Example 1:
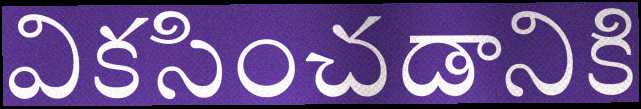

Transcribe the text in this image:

వికసించడానికి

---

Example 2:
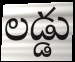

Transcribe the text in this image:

లడ్డు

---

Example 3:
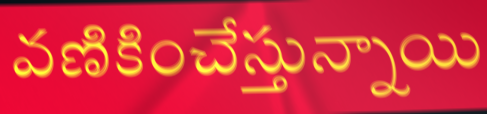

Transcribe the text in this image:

వణికించేస్తున్నాయి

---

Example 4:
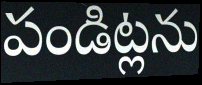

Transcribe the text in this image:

పండిట్లను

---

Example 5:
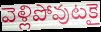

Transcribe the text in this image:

వెళ్లిపోవుటకై